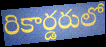
రికార్డరులో